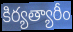
కిర్యత్యారీం